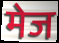
मेज